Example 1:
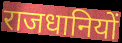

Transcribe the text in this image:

राजधानियों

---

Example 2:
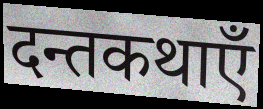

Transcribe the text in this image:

दन्तकथाएँ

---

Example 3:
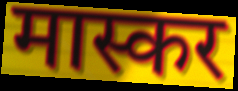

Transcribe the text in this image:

मास्कर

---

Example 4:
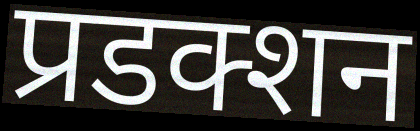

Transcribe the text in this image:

प्रडक्शन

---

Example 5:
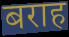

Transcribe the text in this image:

बराह